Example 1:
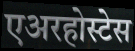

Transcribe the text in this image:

एअरहोस्टेस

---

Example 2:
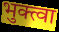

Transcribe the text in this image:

भुक्त्वा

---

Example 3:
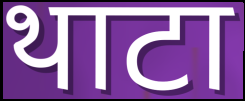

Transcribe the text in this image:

थाटा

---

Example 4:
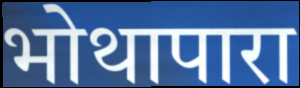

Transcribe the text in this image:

भोथापारा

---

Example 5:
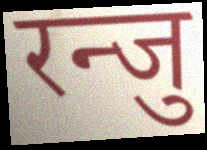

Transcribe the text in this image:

रन्जु